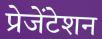
प्रेजेंटेशन